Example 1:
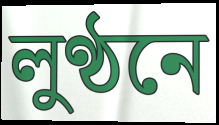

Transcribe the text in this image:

লুণ্ঠনে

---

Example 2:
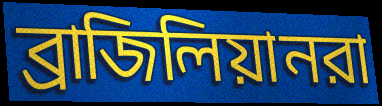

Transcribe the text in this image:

ব্রাজিলিয়ানরা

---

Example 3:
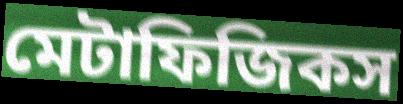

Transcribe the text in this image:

মেটাফিজিকস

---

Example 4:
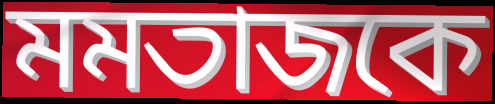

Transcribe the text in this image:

মমতাজকে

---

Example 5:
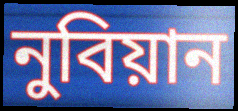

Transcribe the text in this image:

নুবিয়ান